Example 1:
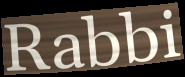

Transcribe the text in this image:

Rabbi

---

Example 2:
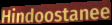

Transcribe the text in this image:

Hindoostanee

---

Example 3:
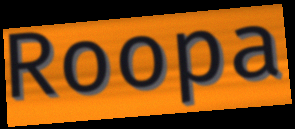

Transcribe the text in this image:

Roopa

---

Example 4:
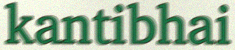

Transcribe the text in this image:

kantibhai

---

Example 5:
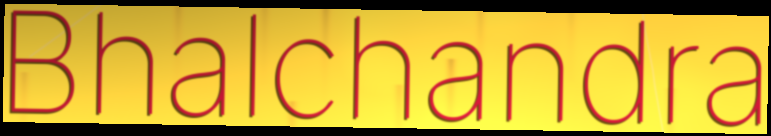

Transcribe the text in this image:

Bhalchandra